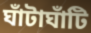
ঘাঁটাঘাঁটি